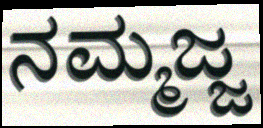
ನಮ್ಮಜ್ಜ